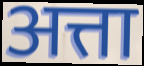
अत्ता